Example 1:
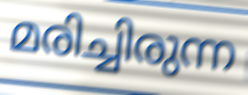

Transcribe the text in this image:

മരിച്ചിരുന്ന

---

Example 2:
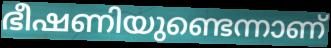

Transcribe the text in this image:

ഭീഷണിയുണ്ടെന്നാണ്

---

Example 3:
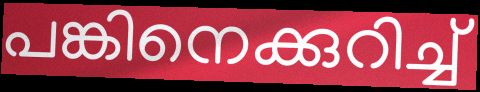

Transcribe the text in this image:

പങ്കിനെക്കുറിച്ച്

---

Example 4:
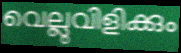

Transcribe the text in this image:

വെല്ലുവിളിക്കും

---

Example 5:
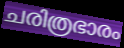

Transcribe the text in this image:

ചരിത്രഭാരം